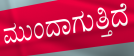
ಮುಂದಾಗುತ್ತಿದೆ